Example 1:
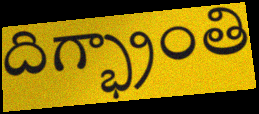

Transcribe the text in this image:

దిగ్భ్రాంతి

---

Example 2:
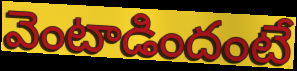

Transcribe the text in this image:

వెంటాడిందంటే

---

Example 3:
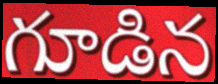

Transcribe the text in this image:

గూడిన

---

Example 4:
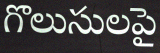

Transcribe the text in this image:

గొలుసులపై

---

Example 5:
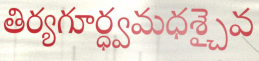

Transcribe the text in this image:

తిర్యగూర్ధ్వమధశ్చైవ